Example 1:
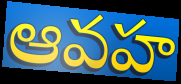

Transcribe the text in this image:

ఆవహ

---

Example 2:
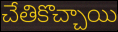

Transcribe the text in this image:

చేతికొచ్చాయి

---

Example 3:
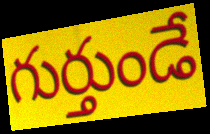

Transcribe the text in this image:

గుర్తుండే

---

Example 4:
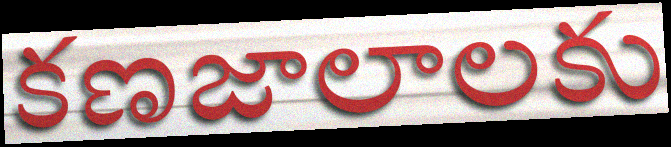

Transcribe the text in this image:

కణజాలాలకు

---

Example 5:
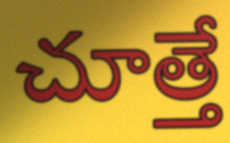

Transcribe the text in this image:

చూత్తే